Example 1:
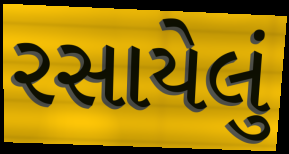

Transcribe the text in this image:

રસાયેલું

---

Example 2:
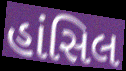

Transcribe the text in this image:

હાંસિલ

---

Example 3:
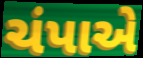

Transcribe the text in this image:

ચંપાએ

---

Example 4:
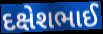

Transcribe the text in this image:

દક્ષેશભાઈ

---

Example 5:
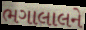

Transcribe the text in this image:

ભગાલાલને